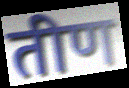
तीण